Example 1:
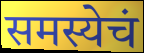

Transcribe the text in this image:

समस्येचं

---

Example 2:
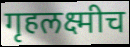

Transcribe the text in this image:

गृहलक्ष्मीच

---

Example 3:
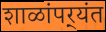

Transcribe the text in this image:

शाळांपर्यंत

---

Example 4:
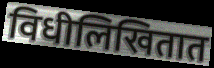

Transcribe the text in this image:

विधीलिखितात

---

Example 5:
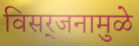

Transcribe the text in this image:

विसर्जनामुळे